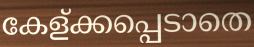
കേള്ക്കപ്പെടാതെ